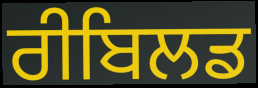
ਰੀਬਿਲਡ